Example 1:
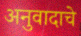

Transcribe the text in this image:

अनुवादाचे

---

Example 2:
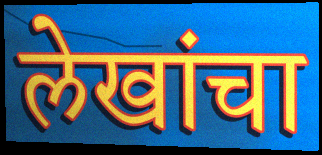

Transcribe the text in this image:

लेखांचा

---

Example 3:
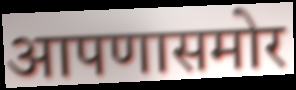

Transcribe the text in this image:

आपणासमोर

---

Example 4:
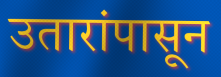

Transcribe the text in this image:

उतारांपासून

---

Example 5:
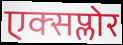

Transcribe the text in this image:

एक्‍सप्लोर